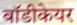
बॉडीकेयर